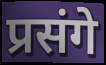
प्रसंगे